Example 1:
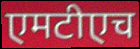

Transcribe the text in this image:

एमटीएच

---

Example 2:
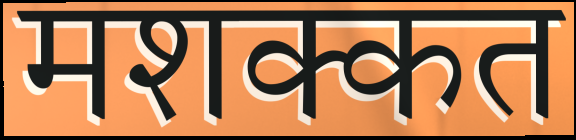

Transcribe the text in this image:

मशक्कत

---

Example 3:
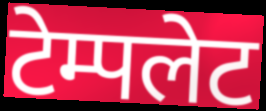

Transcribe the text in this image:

टेम्पलेट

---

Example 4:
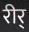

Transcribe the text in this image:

रीर्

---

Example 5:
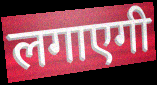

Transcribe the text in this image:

लगाएगी